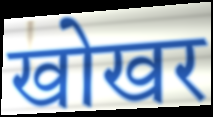
खोखर